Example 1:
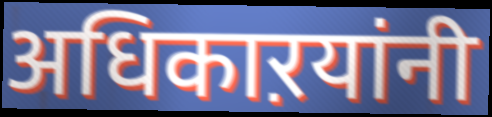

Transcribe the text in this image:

अधिकाऱयांनी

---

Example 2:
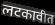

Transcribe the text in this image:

लटकावीत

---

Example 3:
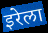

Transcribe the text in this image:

इरेला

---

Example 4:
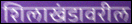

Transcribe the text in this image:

शिलाखंडावरील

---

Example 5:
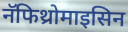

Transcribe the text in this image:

नॅफिथ्रोमाइसिन